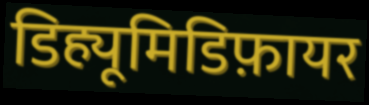
डिह्यूमिडिफ़ायर